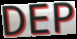
DEP